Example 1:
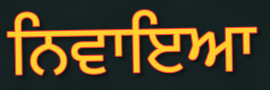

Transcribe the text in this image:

ਨਿਵਾਇਆ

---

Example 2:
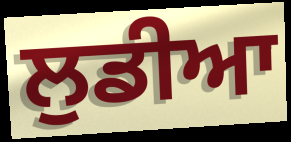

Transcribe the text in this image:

ਲੁਡੀਆ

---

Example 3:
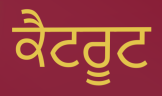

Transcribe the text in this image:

ਕੈਟਰੂਟ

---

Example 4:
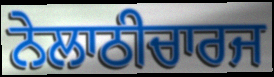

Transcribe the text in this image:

ਨੇਲਾਠੀਚਾਰਜ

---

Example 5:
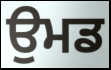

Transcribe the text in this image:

ਉਮਡ